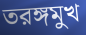
তরঙ্গমুখ